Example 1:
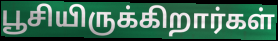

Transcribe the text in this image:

பூசியிருக்கிறார்கள்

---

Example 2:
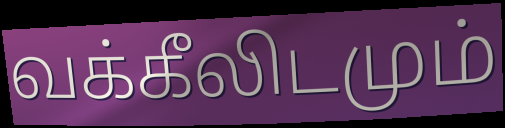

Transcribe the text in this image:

வக்கீலிடமும்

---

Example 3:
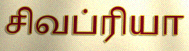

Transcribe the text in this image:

சிவப்ரியா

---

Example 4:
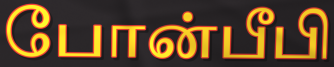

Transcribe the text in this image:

போன்பீபி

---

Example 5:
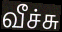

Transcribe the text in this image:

வீச்சு